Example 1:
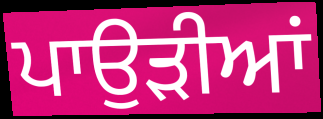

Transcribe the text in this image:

ਪਾਉੜੀਆਂ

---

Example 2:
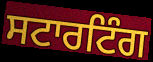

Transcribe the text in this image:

ਸਟਾਰਟਿੰਗ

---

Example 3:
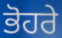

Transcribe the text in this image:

ਭੋਹਰੇ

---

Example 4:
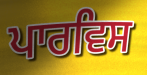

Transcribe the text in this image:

ਪਾਰਵਿਸ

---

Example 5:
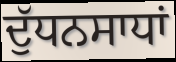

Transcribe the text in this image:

ਦੁੱਧਨਸਾਧਾਂ